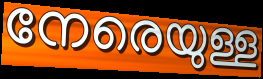
നേരെയുള്ള